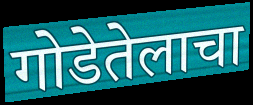
गोडेतेलाचा